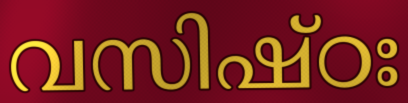
വസിഷ്ഠഃ